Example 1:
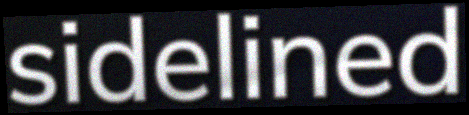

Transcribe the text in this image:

sidelined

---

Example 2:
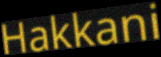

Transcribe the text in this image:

Hakkani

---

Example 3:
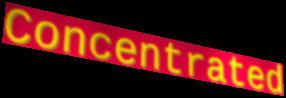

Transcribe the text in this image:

Concentrated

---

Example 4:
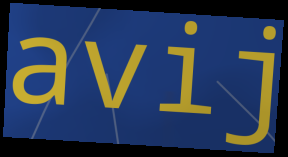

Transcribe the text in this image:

avij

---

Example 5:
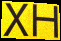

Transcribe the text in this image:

XH